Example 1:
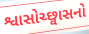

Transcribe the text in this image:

શ્વાસોચ્છ્વાસનો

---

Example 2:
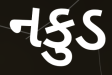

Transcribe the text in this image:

નકુડ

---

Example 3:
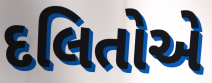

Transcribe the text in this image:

દલિતોએ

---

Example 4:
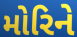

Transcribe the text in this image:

મોરિને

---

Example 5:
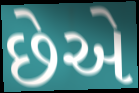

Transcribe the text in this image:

છેએ